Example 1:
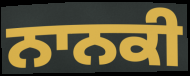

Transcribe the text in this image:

ਨਾਨਕੀ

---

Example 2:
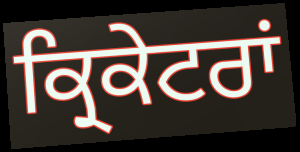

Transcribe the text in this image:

ਕ੍ਰਿਕੇਟਰਾਂ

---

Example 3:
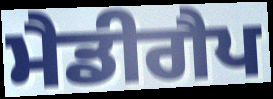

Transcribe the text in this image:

ਮੈਡੀਗੈਪ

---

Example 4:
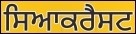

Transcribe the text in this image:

ਸਿਆਕਰੈਸਟ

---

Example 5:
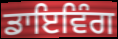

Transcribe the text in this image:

ਡਾਇਵਿੰਗ